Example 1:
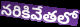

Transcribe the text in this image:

నరికివేతలో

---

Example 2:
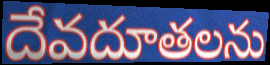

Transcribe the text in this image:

దేవదూతలను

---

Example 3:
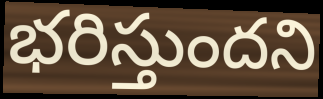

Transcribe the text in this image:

భరిస్తుందని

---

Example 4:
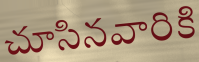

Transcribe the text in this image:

చూసినవారికి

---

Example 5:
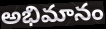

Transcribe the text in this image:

అభిమానం